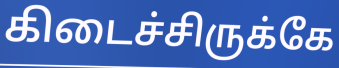
கிடைச்சிருக்கே